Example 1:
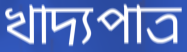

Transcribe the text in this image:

খাদ্যপাত্র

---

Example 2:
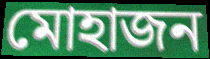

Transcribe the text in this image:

মোহাজন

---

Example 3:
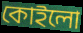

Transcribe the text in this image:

কোইলো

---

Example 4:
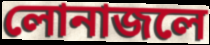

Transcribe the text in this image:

লোনাজলে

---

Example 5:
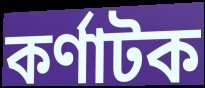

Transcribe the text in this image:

কর্ণাটক